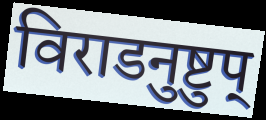
विराडनुष्टुप्